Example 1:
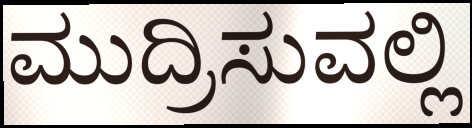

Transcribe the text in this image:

ಮುದ್ರಿಸುವಲ್ಲಿ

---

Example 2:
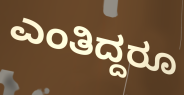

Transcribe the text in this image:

ಎಂತಿದ್ದರೂ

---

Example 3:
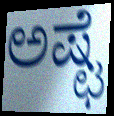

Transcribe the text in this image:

ಅಷ್ಟೆ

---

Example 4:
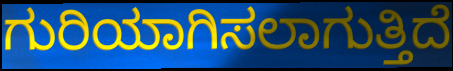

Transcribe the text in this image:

ಗುರಿಯಾಗಿಸಲಾಗುತ್ತಿದೆ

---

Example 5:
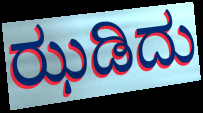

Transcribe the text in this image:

ಝಡಿದು